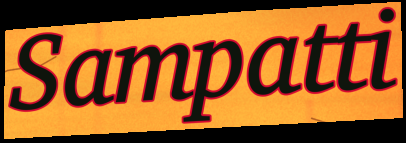
Sampatti